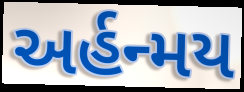
અર્હન્મય